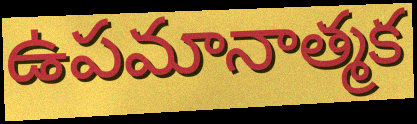
ఉపమానాత్మక